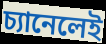
চ্যানেলেই